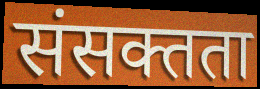
संसक्तता